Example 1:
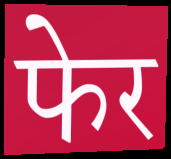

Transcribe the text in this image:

फेर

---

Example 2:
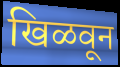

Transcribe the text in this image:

खिळवून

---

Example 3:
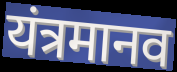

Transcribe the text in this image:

यंत्रमानव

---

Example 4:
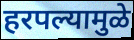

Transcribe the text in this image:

हरपल्यामुळे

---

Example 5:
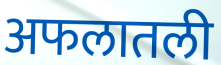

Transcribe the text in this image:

अफलातली